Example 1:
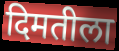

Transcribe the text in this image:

दिमतीला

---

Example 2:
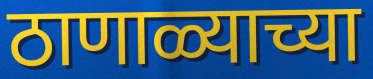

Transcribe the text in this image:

ठाणाळ्याच्या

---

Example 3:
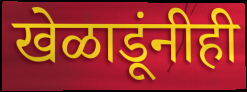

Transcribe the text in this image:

खेळाडूंनीही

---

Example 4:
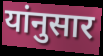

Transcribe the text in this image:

यांनुसार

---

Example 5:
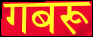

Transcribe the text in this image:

गबरू